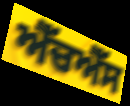
ਐੱਚਐੱਸ